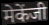
मेकेंजी